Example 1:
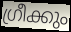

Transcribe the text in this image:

ഗ്രീക്കും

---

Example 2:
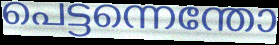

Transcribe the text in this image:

പെട്ടന്നെന്തോ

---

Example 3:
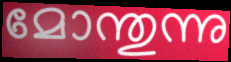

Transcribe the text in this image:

മോന്തുന്നു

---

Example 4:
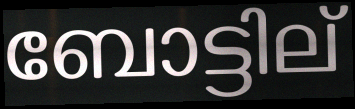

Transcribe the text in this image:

ബോട്ടില്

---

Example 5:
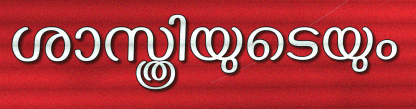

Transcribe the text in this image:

ശാസ്ത്രിയുടെയും